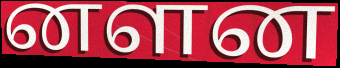
னளன